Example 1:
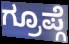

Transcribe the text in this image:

ಗ್ರೂಪ್ಗೆ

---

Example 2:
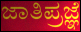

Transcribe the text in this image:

ಜಾತಿಪ್ರಜ್ಞೆ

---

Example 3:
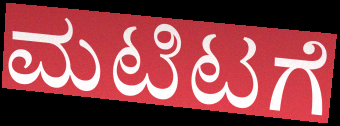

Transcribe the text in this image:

ಮಟಿಟಗೆ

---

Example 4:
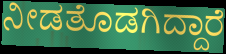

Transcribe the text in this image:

ನೀಡತೊಡಗಿದ್ದಾರೆ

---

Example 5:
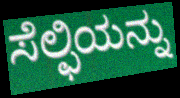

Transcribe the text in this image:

ಸೆಲ್ಫಿಯನ್ನು